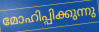
മോഹിപ്പിക്കുന്നു